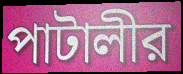
পাটালীর